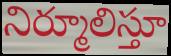
నిర్మూలిస్తూ